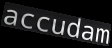
accudam